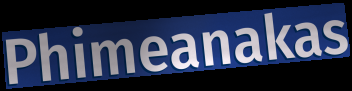
Phimeanakas